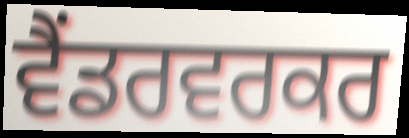
ਵੈਂਡਰਵਰਕਰ